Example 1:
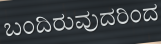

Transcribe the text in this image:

ಬಂದಿರುವುದರಿಂದ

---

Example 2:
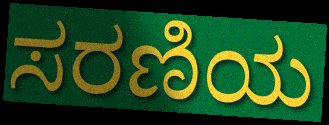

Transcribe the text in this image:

ಸರಣಿಯ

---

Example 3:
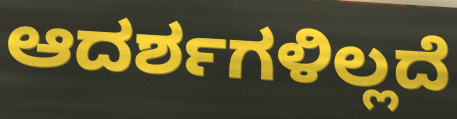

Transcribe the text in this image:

ಆದರ್ಶಗಳಿಲ್ಲದೆ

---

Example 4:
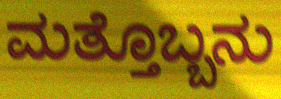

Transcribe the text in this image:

ಮತ್ತೊಬ್ಬನು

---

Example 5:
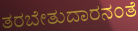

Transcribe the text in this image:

ತರಬೇತುದಾರನಂತೆ